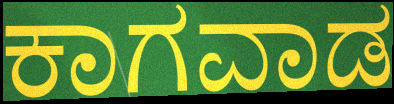
ಕಾಗವಾಡ